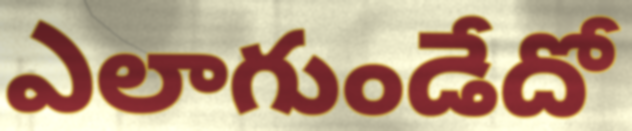
ఎలాగుండేదో